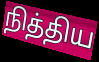
நித்திய